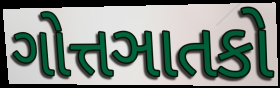
ગોત્તઞાતકો